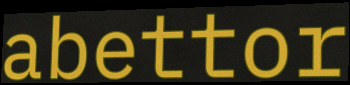
abettor